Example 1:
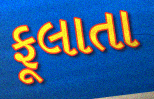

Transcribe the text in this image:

ફૂલાતા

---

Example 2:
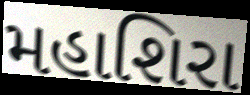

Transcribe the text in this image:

મહાશિરા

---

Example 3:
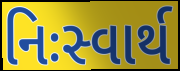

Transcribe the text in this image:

નિઃસ્વાર્થ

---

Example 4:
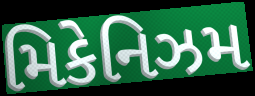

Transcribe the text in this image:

મિકેનિઝમ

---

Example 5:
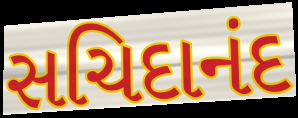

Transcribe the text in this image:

સચિદાનંદ